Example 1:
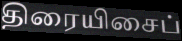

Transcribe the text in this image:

திரையிசைப்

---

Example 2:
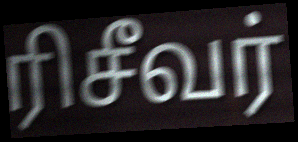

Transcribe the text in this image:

ரிசீவர்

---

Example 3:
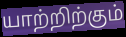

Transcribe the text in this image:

யாற்றிற்கும்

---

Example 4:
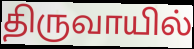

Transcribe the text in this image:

திருவாயில்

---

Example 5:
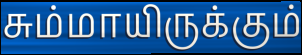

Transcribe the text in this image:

சும்மாயிருக்கும்